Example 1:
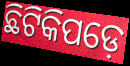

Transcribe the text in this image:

ଛିଟିକିପଡ଼େ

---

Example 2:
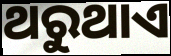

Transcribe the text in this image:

ଥରୁଥାଏ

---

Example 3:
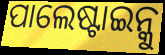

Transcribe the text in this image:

ପାଲେଷ୍ଟାଇନ୍କୁ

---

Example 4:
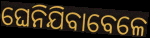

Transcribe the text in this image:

ଘେନିଯିବାବେଳେ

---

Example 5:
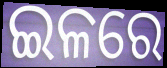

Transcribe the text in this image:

ଇଳରେ